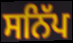
ਸਨਿੱਪ